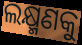
ଲକ୍ଷ୍ମଣକୁ